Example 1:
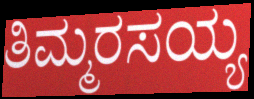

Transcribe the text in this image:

ತಿಮ್ಮರಸಯ್ಯ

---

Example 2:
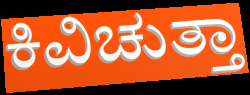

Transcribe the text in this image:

ಕಿವಿಚುತ್ತಾ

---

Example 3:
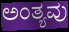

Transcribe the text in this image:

ಅಂತ್ಯವು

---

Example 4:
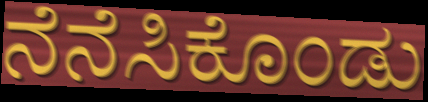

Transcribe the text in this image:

ನೆನೆಸಿಕೊಂಡು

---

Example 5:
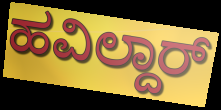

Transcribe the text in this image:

ಹವಿಲ್ದಾರ್